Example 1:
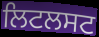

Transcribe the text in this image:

ਲਿਟਲਸਟ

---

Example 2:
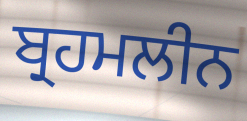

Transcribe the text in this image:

ਬ੍ਰਹਮਲੀਨ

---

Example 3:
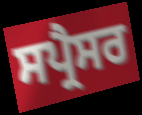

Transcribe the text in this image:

ਸਪ੍ਰੈਸਰ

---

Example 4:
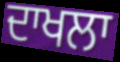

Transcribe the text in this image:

ਦਾਖਲਾ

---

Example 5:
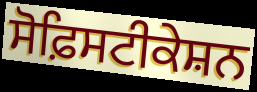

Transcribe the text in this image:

ਸੋਫ਼ਿਸਟੀਕੇਸ਼ਨ